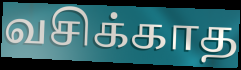
வசிக்காத